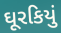
ઘૂરકિયું